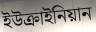
ইউক্রাইনিয়ান